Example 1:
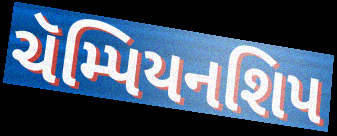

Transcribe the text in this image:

ચૅમ્પિયનશિપ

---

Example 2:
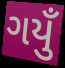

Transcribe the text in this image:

ગયુઁ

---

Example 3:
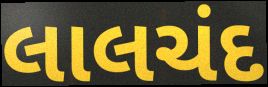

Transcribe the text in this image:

લાલચંદ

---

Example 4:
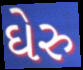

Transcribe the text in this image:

ઘેરુ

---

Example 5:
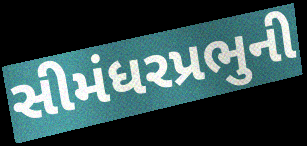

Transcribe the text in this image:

સીમંધરપ્રભુની